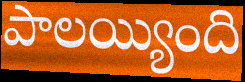
పాలయ్యింది